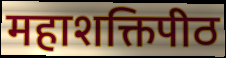
महाशक्तिपीठ